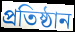
প্রতিষ্ঠান